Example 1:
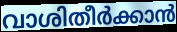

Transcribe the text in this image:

വാശിതീർക്കാൻ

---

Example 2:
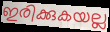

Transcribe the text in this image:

ഇരിക്കുകയല്ല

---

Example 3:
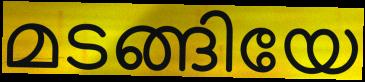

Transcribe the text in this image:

മടങ്ങിയേ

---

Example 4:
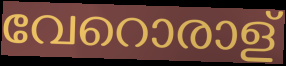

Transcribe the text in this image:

വേറൊരാള്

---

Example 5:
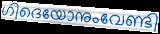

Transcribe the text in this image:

ഗിദെയോനുംവേണ്ടി